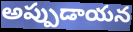
అప్పుడాయన